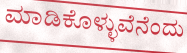
ಮಾಡಿಕೊಳ್ಳುವೆನೆಂದು